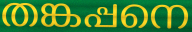
തങ്കപ്പനെ